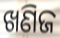
ଖଣିଜ